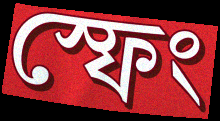
স্ফেং